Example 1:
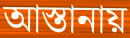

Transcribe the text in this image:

আস্তানায়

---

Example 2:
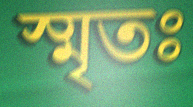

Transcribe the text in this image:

স্মৃতঃ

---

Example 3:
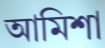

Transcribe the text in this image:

আমিশা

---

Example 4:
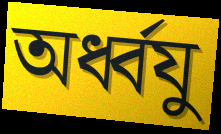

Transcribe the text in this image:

অর্ধ্বযু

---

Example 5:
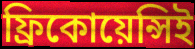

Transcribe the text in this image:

ফ্রিকোয়েন্সিই